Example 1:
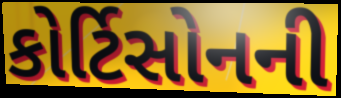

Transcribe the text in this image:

કોર્ટિસોનની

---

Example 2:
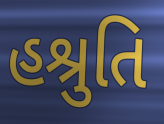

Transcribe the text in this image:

હશ્રુતિ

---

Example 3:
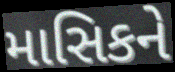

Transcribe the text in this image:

માસિકને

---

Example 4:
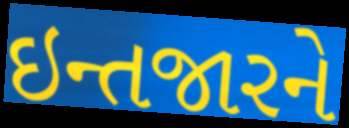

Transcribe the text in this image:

ઇન્તજારને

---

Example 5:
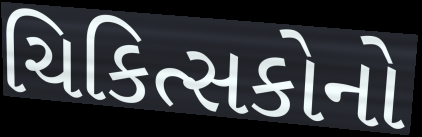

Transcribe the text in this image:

ચિકિત્સકોનો